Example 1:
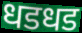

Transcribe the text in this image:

धडधड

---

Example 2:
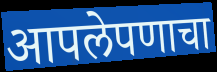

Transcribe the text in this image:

आपलेपणाचा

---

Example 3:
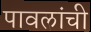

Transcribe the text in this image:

पावलांची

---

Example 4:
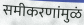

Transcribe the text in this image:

समीकरणांमुळं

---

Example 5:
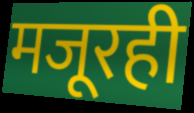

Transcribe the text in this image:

मजूरही